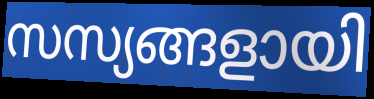
സസ്യങ്ങളായി